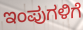
ಇಂಪುಗಳಿಗೆ